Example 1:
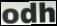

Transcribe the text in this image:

odh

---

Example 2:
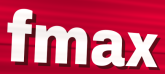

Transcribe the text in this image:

fmax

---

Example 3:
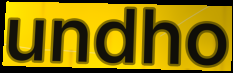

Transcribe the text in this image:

undho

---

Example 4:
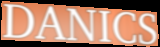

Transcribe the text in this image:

DANICS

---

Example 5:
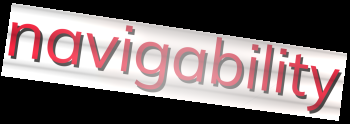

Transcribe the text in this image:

navigability